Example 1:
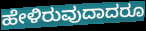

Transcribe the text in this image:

ಹೇಳಿರುವುದಾದರೂ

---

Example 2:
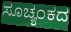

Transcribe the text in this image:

ಸೂಚ್ಯಂಕದ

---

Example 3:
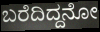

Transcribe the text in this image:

ಬರೆದಿದ್ದನೋ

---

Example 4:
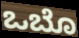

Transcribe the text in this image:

ಒಬೊ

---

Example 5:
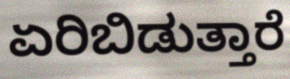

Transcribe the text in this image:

ಏರಿಬಿಡುತ್ತಾರೆ